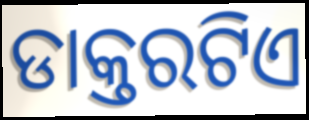
ଡାକ୍ତରଟିଏ